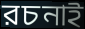
রচনাই